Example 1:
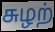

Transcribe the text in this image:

சுழற்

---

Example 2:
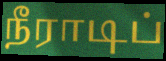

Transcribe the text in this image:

நீராடிப்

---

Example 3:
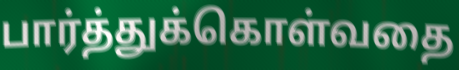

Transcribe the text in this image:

பார்த்துக்கொள்வதை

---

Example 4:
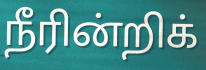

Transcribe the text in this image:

நீரின்றிக்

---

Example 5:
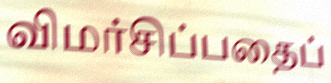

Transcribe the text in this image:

விமர்சிப்பதைப்